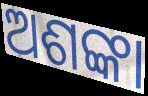
ଅଶଙ୍କା